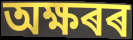
অক্ষৰৰ